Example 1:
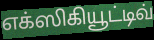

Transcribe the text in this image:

எக்ஸிகியூட்டிவ்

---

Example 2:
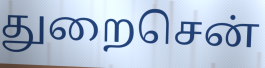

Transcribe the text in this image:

துறைசென்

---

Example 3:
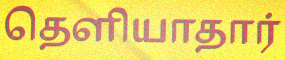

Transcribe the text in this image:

தெளியாதார்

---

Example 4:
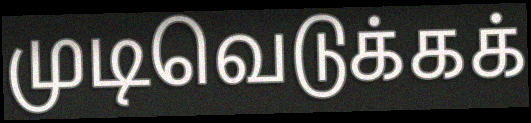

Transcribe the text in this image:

முடிவெடுக்கக்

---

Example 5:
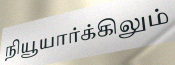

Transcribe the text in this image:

நியூயார்க்கிலும்